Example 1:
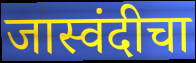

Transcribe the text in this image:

जास्वंदीचा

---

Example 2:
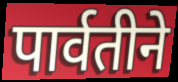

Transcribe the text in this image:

पार्वतीने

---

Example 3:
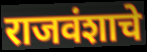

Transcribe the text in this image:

राजवंशाचे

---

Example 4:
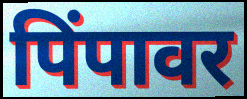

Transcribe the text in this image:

पिंपावर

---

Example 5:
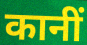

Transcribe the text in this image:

कानीं